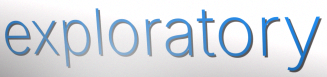
exploratory